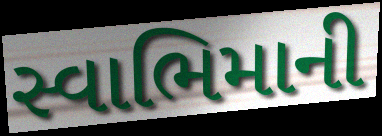
સ્વાભિમાની